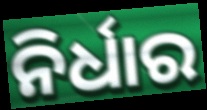
ନିର୍ଧାର